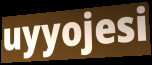
uyyojesi